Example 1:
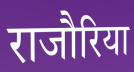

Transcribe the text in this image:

राजौरिया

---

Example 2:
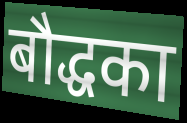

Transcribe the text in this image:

बौद्धका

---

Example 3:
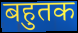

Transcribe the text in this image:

बहुतक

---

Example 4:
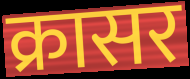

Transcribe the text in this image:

क्रासर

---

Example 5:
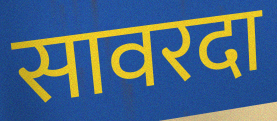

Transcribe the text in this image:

सावरदा